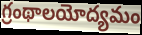
గ్రంథాలయోద్యమం